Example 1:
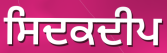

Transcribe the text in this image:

ਸਿਦਕਦੀਪ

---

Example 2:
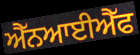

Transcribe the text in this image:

ਐੱਨਆਈਐੱਫ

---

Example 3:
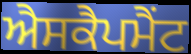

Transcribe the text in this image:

ਐਸਕੈਪਮੈਂਟ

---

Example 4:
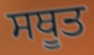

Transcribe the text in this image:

ਸਥੂਤ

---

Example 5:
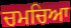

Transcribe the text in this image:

ਚਮਚਿਆ